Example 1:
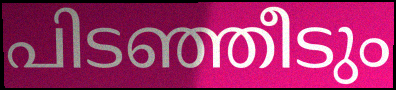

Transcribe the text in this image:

പിടഞ്ഞീടും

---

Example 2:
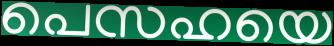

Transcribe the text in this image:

പെസഹയെ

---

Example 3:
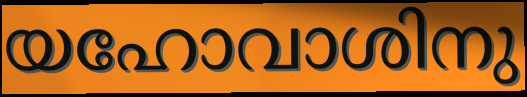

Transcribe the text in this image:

യഹോവാശിനു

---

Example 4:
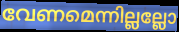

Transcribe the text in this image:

വേണമെന്നില്ലല്ലോ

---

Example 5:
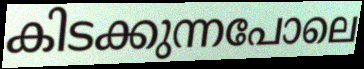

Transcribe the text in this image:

കിടക്കുന്നപോലെ